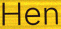
Hen